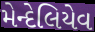
મેન્દેલિયેવ